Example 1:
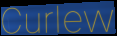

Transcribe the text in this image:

Curlew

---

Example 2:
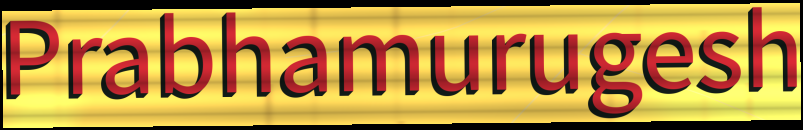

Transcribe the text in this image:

Prabhamurugesh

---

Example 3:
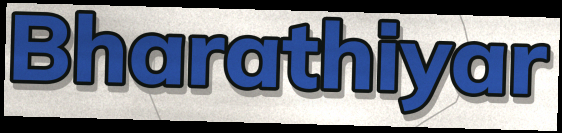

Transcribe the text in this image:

Bharathiyar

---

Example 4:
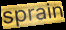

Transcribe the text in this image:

sprain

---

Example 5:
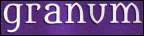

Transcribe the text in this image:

granum